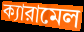
ক্যারামেল